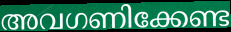
അവഗണിക്കേണ്ട